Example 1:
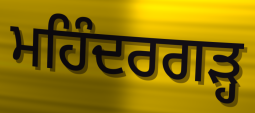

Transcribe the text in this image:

ਮਹਿੰਦਰਗੜ੍ਹ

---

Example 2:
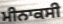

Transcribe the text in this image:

ਮੀਨਾਕਸੀ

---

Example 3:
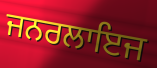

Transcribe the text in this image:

ਜਨਰਲਾਇਜ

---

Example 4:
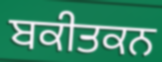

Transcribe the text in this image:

ਬਕੀਤਕਨ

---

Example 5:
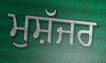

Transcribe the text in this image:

ਮੁਸ਼ੱਜਰ